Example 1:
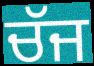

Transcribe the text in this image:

ਚੱਜ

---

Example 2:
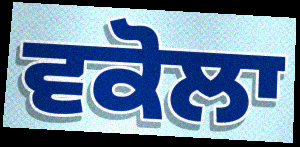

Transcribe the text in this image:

ਵਕੋਲਾ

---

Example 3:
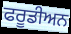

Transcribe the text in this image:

ਫਰੂਡੀਅਨ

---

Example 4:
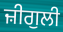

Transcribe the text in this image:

ਜ਼ੀਗੁਲੀ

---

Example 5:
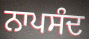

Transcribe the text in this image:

ਨਾਪਸੰਦ